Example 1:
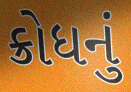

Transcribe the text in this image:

ક્રોધનું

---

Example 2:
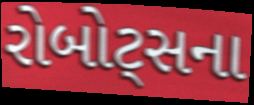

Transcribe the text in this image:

રોબોટ્સના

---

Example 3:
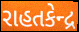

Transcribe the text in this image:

રાહતકેન્દ્ર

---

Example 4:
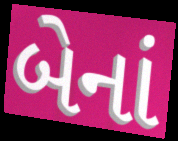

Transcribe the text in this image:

બેનાં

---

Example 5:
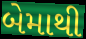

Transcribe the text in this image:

બેમાથી